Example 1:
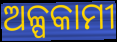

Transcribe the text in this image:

ଅଳ୍ପକାମୀ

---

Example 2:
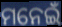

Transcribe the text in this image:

ମନେଇଁ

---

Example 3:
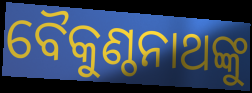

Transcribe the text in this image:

ବୈକୁଣ୍ଠନାଥଙ୍କୁ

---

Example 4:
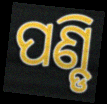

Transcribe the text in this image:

ପଣ୍ଡି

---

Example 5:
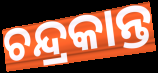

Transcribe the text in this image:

ଚନ୍ଦ୍ରକାନ୍ତ